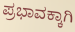
ಪ್ರಭಾವಕ್ಕಾಗಿ